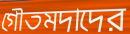
গৌতমদাদের